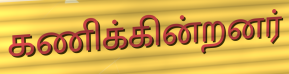
கணிக்கின்றனர்